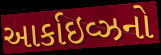
આર્કાઇવ્ઝનો